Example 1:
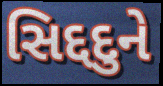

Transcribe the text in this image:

સિદ્દદુને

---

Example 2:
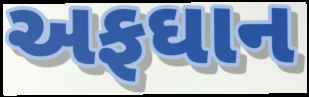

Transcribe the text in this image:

અફઘાન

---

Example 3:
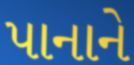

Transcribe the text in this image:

પાનાને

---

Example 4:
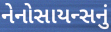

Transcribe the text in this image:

નેનોસાયન્સનું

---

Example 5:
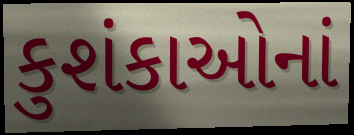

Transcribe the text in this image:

કુશંકાઓનાં